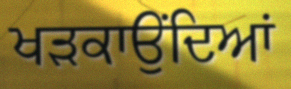
ਖੜਕਾਉਂਦਿਆਂ